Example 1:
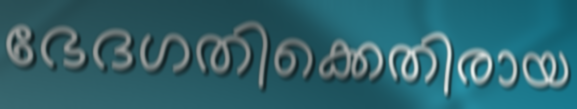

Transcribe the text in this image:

ഭേദഗതിക്കെതിരായ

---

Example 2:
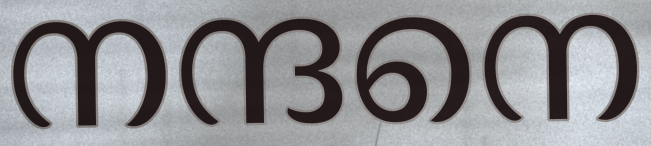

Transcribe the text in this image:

നന്ദനെ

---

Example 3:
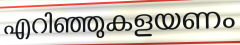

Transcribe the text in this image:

എറിഞ്ഞുകളയണം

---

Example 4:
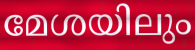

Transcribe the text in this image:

മേശയിലും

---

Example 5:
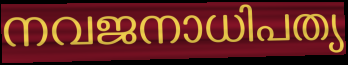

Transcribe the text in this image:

നവജനാധിപത്യ